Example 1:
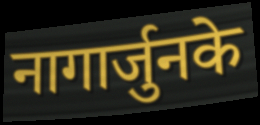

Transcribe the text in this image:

नागार्जुनके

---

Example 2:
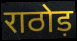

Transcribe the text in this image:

राठोड़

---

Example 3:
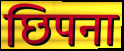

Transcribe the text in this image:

छिपना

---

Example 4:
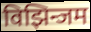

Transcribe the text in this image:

विझिन्जम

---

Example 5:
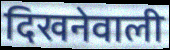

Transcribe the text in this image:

दिखनेवाली